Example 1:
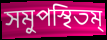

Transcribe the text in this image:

সমুপস্থিতম্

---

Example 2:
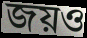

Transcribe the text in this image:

জয়ও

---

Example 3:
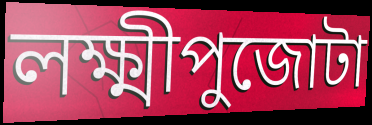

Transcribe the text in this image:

লক্ষ্মীপুজোটা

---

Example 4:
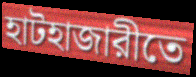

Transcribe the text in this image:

হাটহাজারীতে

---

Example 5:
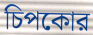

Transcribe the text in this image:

চিপকোর